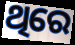
ଥିରେ